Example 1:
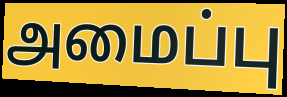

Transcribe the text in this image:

அமைப்பு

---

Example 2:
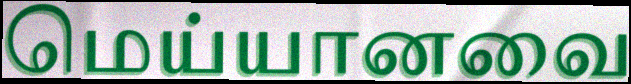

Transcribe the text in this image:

மெய்யானவை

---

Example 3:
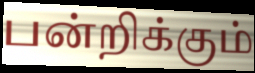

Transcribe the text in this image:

பன்றிக்கும்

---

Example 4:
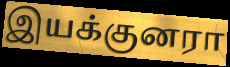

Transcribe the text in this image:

இயக்குனரா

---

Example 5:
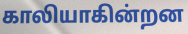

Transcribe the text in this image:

காலியாகின்றன